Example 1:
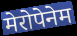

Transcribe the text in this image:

मेरोपेनेम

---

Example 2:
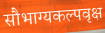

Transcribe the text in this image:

सौभाग्यकल्पवृक्ष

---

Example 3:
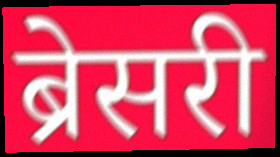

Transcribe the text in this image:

ब्रेसरी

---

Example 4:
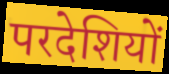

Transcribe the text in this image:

परदेशियों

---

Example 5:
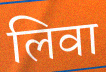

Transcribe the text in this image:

लिवा